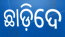
ଛାଡ଼ିଦେ